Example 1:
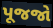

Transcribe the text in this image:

પૂજજો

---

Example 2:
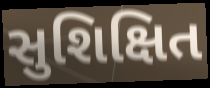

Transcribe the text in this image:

સુશિક્ષિત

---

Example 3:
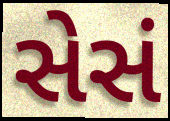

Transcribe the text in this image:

સેસં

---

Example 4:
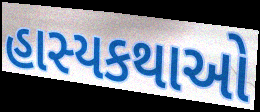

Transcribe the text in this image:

હાસ્યકથાઓ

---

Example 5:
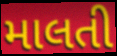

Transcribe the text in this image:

માલતી